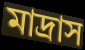
মাদ্রাস